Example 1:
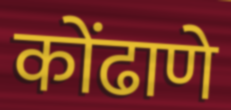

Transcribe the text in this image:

कोंढाणे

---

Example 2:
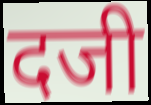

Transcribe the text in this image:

दजी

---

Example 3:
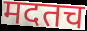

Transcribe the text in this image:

मदतच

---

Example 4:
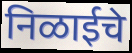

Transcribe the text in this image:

निळाईचे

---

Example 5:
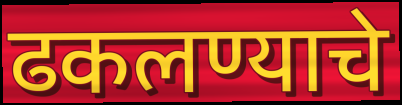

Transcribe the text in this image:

ढकलण्याचे